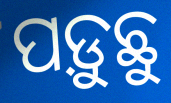
ପଡ଼ୁଛୁ